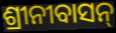
ଶ୍ରୀନୀବାସନ୍